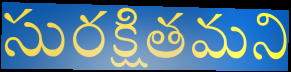
సురక్షితమని